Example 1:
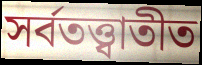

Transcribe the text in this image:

সর্বতত্ত্বাতীত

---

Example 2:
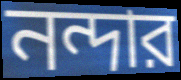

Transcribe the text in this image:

নন্দার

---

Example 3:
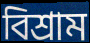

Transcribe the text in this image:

বিশ্রাম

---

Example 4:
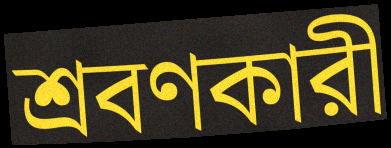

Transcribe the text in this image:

শ্রবণকারী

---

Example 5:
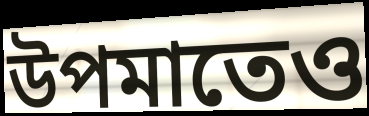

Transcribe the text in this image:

উপমাতেও